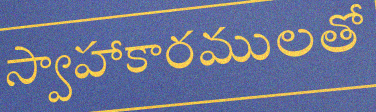
స్వాహాకారములతో